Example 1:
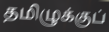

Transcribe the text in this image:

தமிழுக்குப்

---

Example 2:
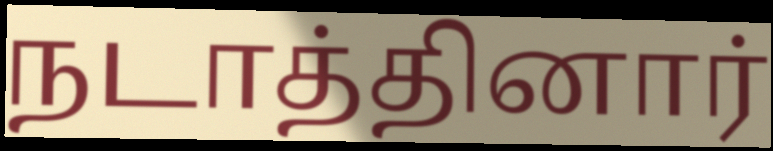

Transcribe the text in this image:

நடாத்தினார்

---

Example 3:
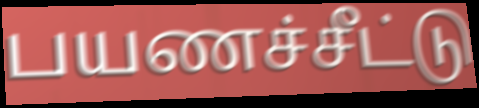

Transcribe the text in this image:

பயணச்சீட்டு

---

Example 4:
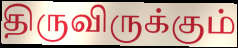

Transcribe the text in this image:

திருவிருக்கும்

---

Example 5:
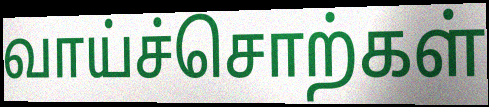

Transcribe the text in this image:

வாய்ச்சொற்கள்